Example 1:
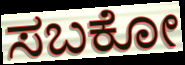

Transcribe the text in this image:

ಸಬಕೋ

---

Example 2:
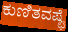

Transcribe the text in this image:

ಕುಣಿತವಷ್ಟೆ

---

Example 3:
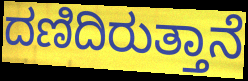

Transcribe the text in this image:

ದಣಿದಿರುತ್ತಾನೆ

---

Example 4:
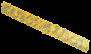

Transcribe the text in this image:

ಪಲಾಯನಸಿರಿಯ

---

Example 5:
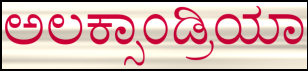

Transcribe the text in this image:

ಅಲಕ್ಸಾಂಡ್ರಿಯಾ